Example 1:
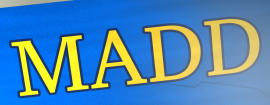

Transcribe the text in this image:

MADD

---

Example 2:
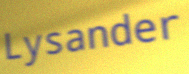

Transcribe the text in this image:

Lysander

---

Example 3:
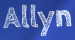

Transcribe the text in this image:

Allyn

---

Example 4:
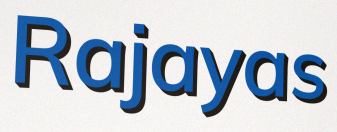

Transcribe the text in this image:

Rajayas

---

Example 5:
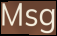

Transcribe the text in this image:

Msg